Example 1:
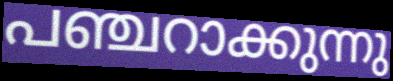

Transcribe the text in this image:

പഞ്ചറാക്കുന്നു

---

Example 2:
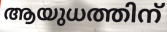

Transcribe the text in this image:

ആയുധത്തിന്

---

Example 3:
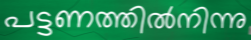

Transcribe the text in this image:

പട്ടണത്തിൽനിന്നു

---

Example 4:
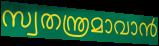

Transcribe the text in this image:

സ്വതന്ത്രമാവാൻ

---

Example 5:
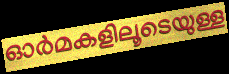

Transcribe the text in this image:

ഓർമകളിലൂടെയുള്ള